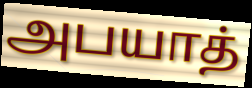
அபயாத்